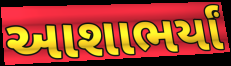
આશાભર્યાં